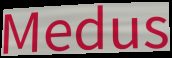
Medus